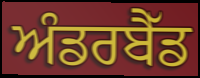
ਅੰਡਰਬੈੱਡ